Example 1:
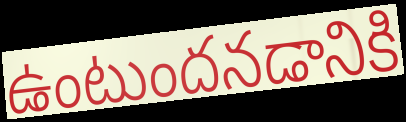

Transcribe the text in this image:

ఉంటుందనడానికి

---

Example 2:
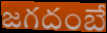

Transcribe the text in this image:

జగదంబే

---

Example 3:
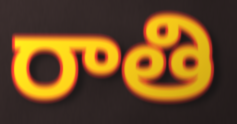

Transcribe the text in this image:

రాతి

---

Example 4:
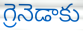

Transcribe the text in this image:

గ్రెనెడాకు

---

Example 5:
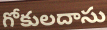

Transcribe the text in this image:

గోకులదాసు